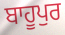
ਬਾਹੂਪੁਰ